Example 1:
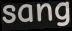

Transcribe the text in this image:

sang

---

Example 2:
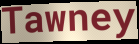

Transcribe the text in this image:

Tawney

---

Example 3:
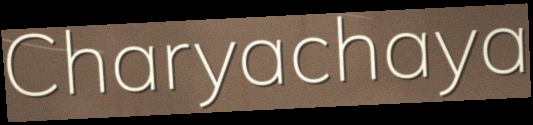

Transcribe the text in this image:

Charyachaya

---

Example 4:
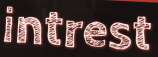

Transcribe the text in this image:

intrest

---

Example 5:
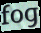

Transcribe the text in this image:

fog